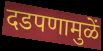
दडपणामुळें